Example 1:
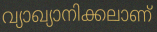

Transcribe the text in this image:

വ്യാഖ്യാനിക്കലാണ്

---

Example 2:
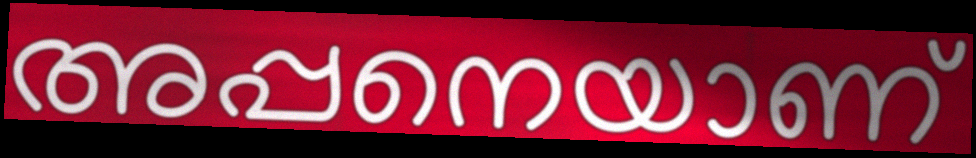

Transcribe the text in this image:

അപ്പനെയാണ്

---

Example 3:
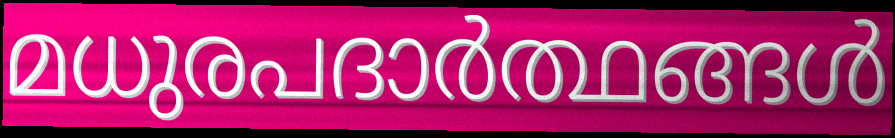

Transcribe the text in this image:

മധുരപദാർത്ഥങ്ങൾ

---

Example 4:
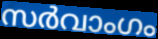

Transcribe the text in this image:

സർവാംഗം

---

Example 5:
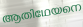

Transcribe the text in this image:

ആതിഥേയനെ